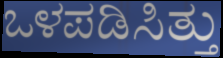
ಒಳಪಡಿಸಿತ್ತು